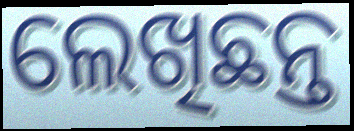
ଲେଖିଛନ୍ତ